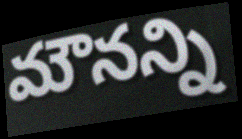
మౌనన్ని